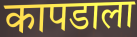
कापडाला